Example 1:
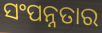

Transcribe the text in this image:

ସଂପନ୍ନତାର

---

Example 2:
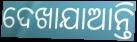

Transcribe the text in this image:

ଦେଖାଯାଆନ୍ତି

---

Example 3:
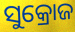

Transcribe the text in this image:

ସୁକ୍ରୋଜ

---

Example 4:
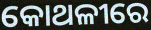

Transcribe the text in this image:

କୋଥଳୀରେ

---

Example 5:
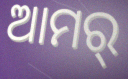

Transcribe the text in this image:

ଆମର୍